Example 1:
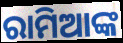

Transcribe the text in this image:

ରାମିଆଙ୍କ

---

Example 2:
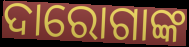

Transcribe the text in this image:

ଦାରୋଗାଙ୍କ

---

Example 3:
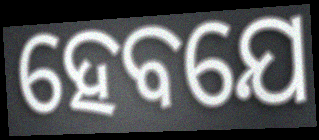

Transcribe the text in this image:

ହେବଯେ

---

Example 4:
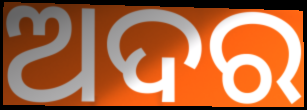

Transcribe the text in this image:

ଅଦର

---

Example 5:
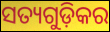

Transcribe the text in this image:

ସତ୍ୟଗୁଡ଼ିକର